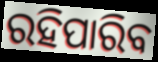
ରହିପାରିବ